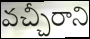
వచ్చీరాని